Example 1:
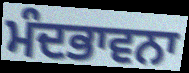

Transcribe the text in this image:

ਮੰਦਭਾਵਨਾ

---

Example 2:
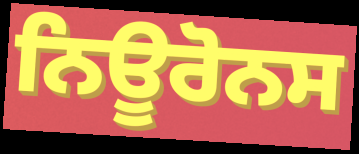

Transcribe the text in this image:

ਨਿਊਰੋਨਸ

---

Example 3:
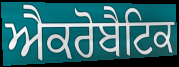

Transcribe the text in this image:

ਐਕਰੋਬੈਟਿਕ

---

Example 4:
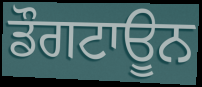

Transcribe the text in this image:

ਡੌਗਟਾਊਨ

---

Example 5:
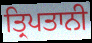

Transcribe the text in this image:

ਤ੍ਰਿਪਤਾਨੀ